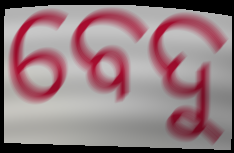
ବେଦୁ